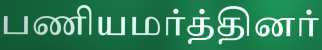
பணியமர்த்தினர்